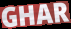
GHAR